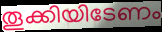
തൂക്കിയിടേണം